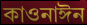
কাওনাঈন